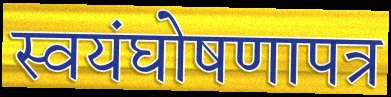
स्वयंघोषणापत्र